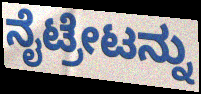
ನೈಟ್ರೇಟನ್ನು